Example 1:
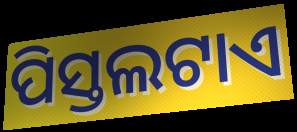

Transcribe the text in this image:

ପିସ୍ତଲଟାଏ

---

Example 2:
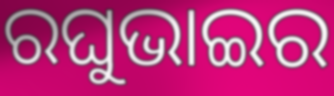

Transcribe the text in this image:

ରଘୁଭାଇର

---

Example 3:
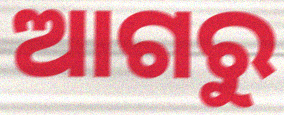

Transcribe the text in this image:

ଆଗରୁ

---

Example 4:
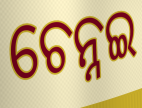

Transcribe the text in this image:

ଚେନ୍ନଇ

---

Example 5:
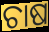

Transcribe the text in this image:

ଚାଷ